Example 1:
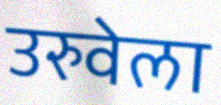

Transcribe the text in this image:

उरुवेला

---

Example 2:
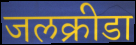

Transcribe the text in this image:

जलक्रीडा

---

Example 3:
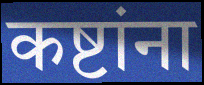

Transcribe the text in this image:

कष्टांना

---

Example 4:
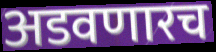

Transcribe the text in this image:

अडवणारच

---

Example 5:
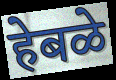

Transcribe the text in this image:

हेबळे